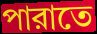
পারাতে